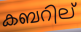
കബറില്